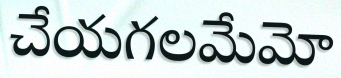
చేయగలమేమో